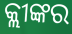
କ୍ଲୀଙ୍କର